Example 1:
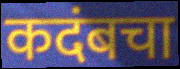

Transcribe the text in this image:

कदंबचा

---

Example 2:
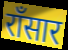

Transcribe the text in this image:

राँसार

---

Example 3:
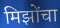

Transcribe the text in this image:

मिझोंचा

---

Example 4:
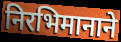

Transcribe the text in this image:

निरभिमानाने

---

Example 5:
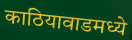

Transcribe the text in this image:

काठियावाडमध्ये